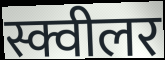
स्क्वीलर